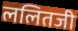
ललितजी